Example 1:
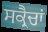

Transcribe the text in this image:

ਸਕ੍ਰੈਚਾਂ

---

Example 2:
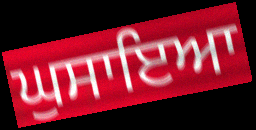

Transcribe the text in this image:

ਘੁਸਾਇਆ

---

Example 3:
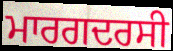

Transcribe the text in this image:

ਮਾਰਗਦਰਸੀ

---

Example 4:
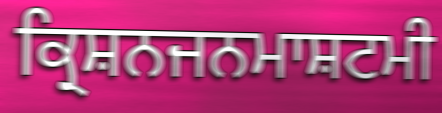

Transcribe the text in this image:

ਕ੍ਰਿਸ਼ਨਜਨਮਾਸ਼ਟਮੀ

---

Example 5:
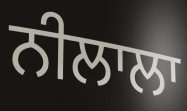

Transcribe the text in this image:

ਨੀਲਾਲਾ